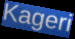
Kageri